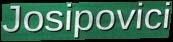
Josipovici